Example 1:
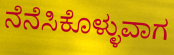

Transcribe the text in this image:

ನೆನೆಸಿಕೊಳ್ಳುವಾಗ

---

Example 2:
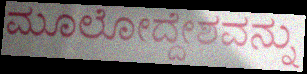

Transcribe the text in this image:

ಮೂಲೋದ್ದೇಶವನ್ನು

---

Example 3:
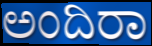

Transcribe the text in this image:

ಅಂದಿರಾ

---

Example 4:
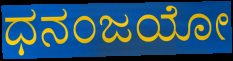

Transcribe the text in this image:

ಧನಂಜಯೋ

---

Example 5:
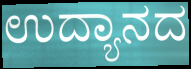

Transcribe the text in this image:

ಉದ್ಯಾನದ